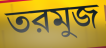
তরমুজ